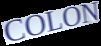
COLON